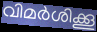
വിമർശിക്കൂ